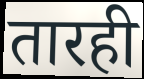
तारही